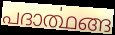
പദാൎത്ഥങ്ങ